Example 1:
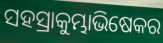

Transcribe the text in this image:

ସହସ୍ରାକୁମ୍ଭାଭିଷେକର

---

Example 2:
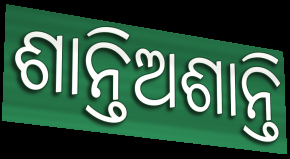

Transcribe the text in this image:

ଶାନ୍ତିଅଶାନ୍ତି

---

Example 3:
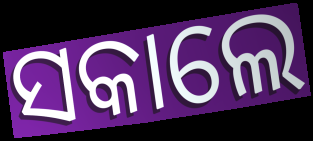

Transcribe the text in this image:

ସକାଲେ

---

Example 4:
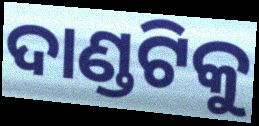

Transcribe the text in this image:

ଦାଣ୍ଡଟିକୁ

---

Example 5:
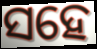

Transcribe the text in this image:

ସହେ